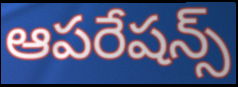
ఆపరేషన్స్